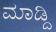
ಮಾಡ್ದಿ